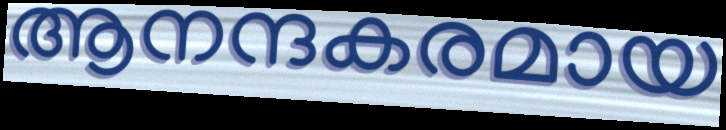
ആനന്ദകരമായ